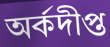
অর্কদীপ্ত